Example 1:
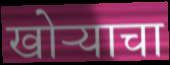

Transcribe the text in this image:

खोऱ्याचा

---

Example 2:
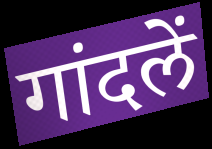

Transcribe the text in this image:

गांदलें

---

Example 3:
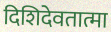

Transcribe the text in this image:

दिशिदेवतात्मा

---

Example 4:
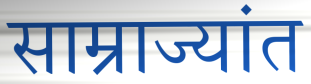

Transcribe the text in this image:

साम्राज्यांत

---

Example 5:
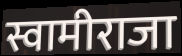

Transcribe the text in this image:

स्वामीराजा